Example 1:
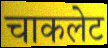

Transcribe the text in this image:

चाकलेट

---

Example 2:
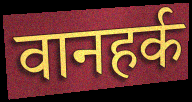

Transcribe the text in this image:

वानहर्क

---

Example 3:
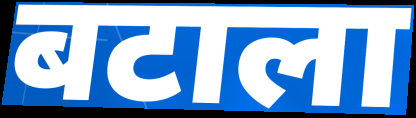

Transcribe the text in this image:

बटाला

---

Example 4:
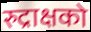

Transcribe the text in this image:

रुद्राक्षको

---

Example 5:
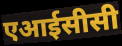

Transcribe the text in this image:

एआईसीसी